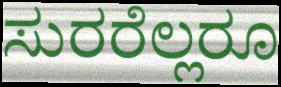
ಸುರರೆಲ್ಲರೂ